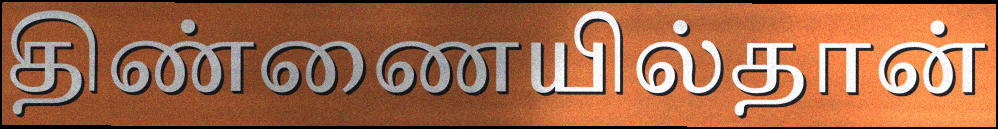
திண்ணையில்தான்